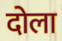
दोला